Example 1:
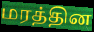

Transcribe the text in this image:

மரத்தின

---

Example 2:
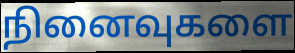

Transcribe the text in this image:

நினைவுகளை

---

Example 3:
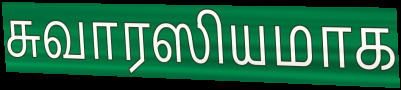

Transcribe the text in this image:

சுவாரஸியமாக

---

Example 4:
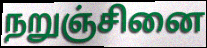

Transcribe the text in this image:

நறுஞ்சினை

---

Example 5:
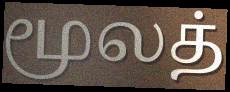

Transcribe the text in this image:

மூலத்